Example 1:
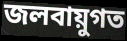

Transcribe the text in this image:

জলবায়ুগত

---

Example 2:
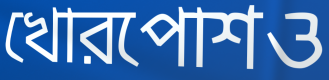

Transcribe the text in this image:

খোরপোশও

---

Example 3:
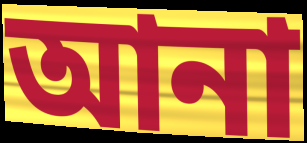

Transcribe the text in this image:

আনা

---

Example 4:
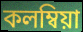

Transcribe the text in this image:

কলম্বিয়া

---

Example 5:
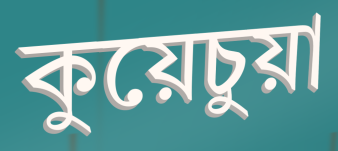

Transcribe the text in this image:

কুয়েচুয়া